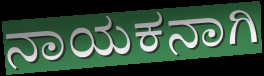
ನಾಯಕನಾಗಿ